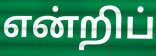
என்றிப்